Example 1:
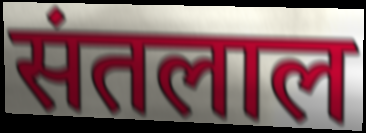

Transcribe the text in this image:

संतलाल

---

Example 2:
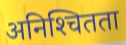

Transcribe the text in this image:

अनिश्‍चितता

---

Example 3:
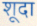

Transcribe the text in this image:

शूदा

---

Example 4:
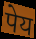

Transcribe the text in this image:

पेय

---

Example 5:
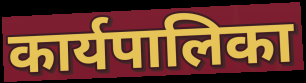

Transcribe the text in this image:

कार्यपालिका